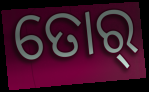
ତୋର୍